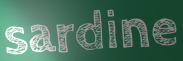
sardine